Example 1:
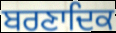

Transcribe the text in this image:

ਬਰਣਾਦਿਕ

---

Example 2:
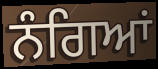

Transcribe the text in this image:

ਨੰਗਿਆਂ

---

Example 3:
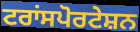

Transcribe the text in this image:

ਟਰਾਂਸਪੋਰਟੇਸ਼ਨ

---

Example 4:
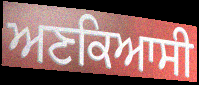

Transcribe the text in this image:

ਅਣਕਿਆਸੀ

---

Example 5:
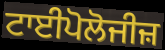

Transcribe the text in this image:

ਟਾਈਪੋਲੋਜੀਜ਼